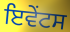
ਇਵੇੰਟਸ